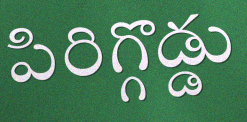
పిరిగ్గొడ్డు